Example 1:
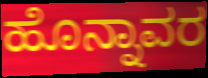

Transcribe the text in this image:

ಹೊನ್ನಾವರ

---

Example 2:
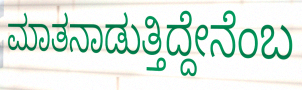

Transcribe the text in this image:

ಮಾತನಾಡುತ್ತಿದ್ದೇನೆಂಬ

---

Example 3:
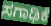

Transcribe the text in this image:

ಸಗಾಢಿಕೆ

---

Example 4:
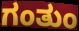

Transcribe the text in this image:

ಗಂತುಂ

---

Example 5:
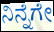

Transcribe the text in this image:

ನಿನ್ನೆಗೇ